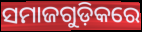
ସମାଜଗୁଡ଼ିକରେ